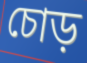
চোড়